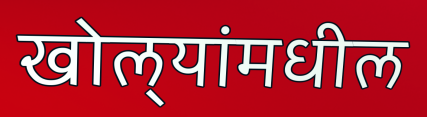
खोल्यांमधील